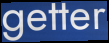
getter